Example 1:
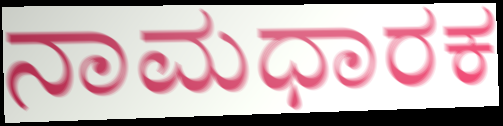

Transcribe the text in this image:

ನಾಮಧಾರಕ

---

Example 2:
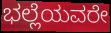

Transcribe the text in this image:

ಭಲ್ಲೆಯವರೇ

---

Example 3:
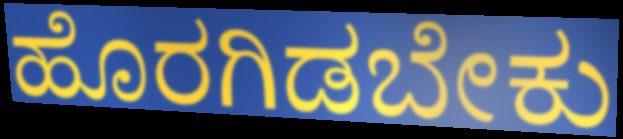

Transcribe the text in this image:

ಹೊರಗಿಡಬೇಕು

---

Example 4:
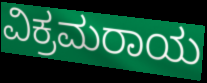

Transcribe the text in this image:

ವಿಕ್ರಮರಾಯ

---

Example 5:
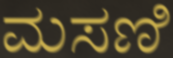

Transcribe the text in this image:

ಮಸಣಿ